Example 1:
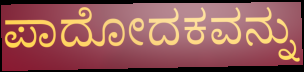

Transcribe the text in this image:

ಪಾದೋದಕವನ್ನು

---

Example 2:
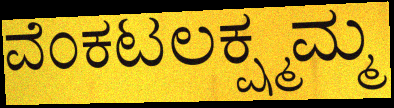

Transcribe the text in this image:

ವೆಂಕಟಲಕ್ಷ್ಮಮ್ಮ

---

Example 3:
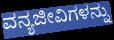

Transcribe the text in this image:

ವನ್ಯಜೀವಿಗಳನ್ನು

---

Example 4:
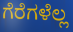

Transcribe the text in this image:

ಗೆರೆಗಳೆಲ್ಲ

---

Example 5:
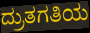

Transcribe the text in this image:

ದ್ರುತಗತಿಯ